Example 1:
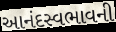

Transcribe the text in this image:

આનંદસ્વભાવની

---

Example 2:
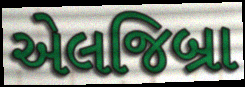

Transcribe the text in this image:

એલજિબ્રા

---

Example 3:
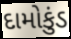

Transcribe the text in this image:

દામોકુંડ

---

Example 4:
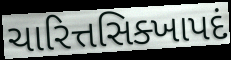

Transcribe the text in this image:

ચારિત્તસિક્ખાપદં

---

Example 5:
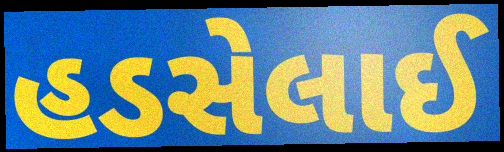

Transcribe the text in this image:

હડસેલાઈ